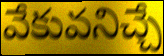
వేకువనిచ్చే